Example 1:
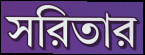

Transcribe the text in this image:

সরিতার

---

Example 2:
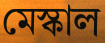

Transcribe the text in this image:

মেস্কাল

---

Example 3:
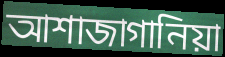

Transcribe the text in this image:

আশাজাগানিয়া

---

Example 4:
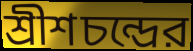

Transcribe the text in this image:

শ্রীশচন্দ্রের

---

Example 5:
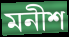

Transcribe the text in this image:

মনীশ